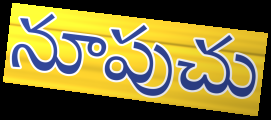
నూపుచు